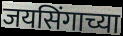
जयसिंगाच्या